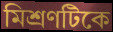
মিশ্রণটিকে